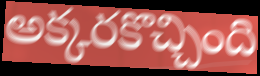
అక్కరకొచ్చింది